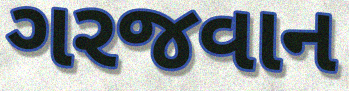
ગરજવાન